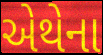
એથેના